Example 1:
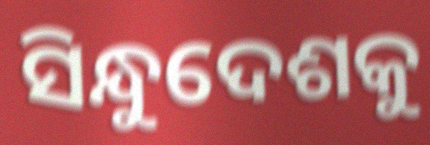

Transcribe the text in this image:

ସିନ୍ଧୁଦେଶକୁ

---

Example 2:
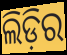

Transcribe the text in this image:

ଲିଡ଼ିର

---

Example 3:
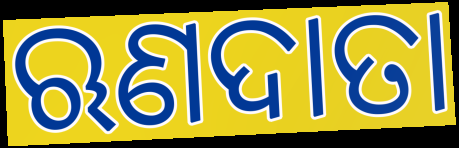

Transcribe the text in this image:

ଋଣଦାତା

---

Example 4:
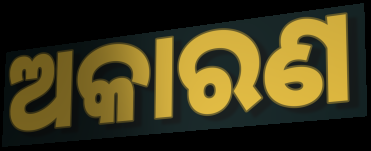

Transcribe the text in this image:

ଅକାରଣ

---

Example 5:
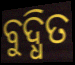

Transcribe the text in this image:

ବୁଦ୍ଧିତ